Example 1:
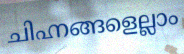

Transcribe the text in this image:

ചിഹ്നങ്ങളെല്ലാം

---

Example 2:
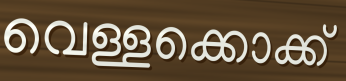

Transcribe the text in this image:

വെള്ളക്കൊക്ക്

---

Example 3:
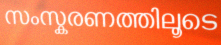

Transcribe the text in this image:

സംസ്കരണത്തിലൂടെ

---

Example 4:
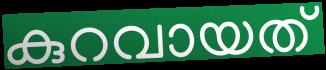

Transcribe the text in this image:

കുറവായത്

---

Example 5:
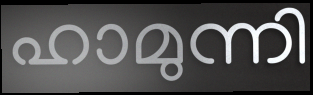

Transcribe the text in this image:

ഹാമുന്നി